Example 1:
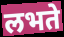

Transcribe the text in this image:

लभते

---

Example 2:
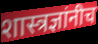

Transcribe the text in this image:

शास्त्रज्ञांनीच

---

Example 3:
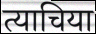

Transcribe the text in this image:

त्याचिया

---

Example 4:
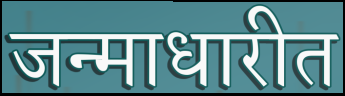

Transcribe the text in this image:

जन्माधारीत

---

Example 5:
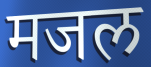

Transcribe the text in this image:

मजल